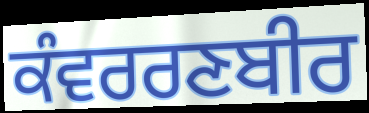
ਕੰਵਰਰਣਬੀਰ